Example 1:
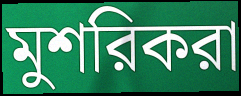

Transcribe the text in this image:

মুশরিকরা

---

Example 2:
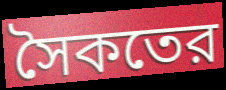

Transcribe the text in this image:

সৈকতের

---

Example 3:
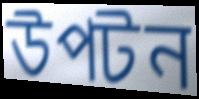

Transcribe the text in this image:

উপটন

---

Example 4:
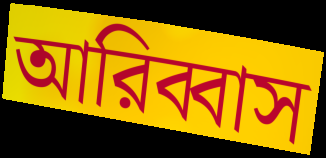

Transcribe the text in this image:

আরিব্বাস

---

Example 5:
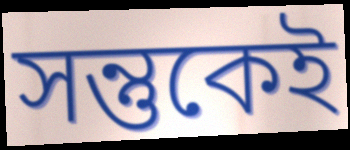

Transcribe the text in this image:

সন্তুকেই